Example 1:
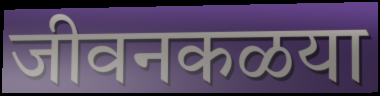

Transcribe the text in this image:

जीवनकळया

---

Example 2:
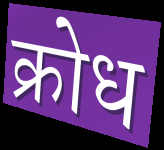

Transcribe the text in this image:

क्रोध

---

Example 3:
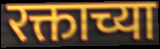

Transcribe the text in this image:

रक्ताच्या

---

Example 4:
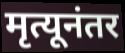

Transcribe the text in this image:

मृत्यूनंतर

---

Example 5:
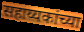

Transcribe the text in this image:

सहाय्यकांच्या